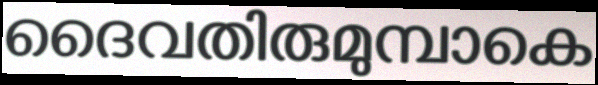
ദൈവതിരുമുമ്പാകെ